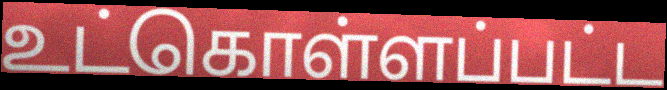
உட்கொள்ளப்பட்ட